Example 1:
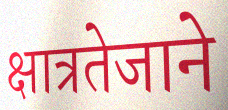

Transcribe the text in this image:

क्षात्रतेजाने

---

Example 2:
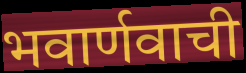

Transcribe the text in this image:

भवार्णवाची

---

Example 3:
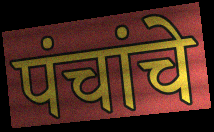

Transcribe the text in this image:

पंचांचे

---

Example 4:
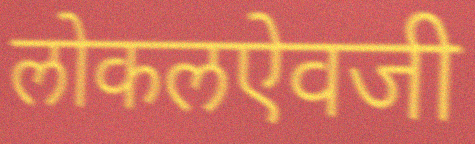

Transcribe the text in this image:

लोकलऐवजी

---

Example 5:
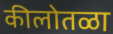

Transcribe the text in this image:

कीलोतळा